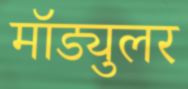
मॉड्युलर